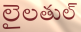
లైలతుల్